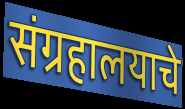
संग्रहालयाचे